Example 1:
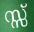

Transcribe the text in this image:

സ്സ്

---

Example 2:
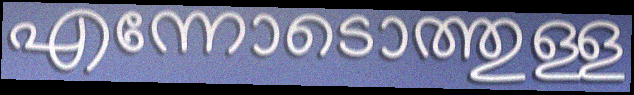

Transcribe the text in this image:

എന്നോടൊത്തുള്ള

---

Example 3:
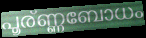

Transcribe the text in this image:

പൂര്ണ്ണബോധം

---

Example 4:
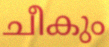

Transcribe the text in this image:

ചീകും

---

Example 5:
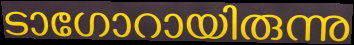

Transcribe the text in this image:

ടാഗോറായിരുന്നു